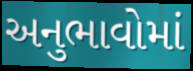
અનુભાવોમાં